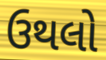
ઉથલો